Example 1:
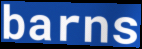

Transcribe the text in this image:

barns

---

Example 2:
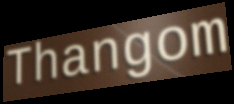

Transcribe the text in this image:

Thangom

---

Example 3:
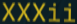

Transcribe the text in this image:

XXXii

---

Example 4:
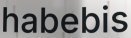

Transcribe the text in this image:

habebis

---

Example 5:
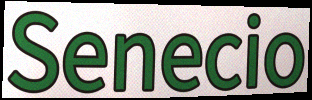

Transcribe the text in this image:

Senecio